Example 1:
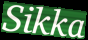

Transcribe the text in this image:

Sikka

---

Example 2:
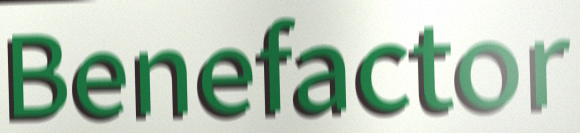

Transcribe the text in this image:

Benefactor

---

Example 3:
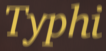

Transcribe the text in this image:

Typhi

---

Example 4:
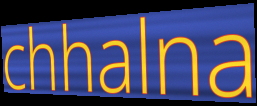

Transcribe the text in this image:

chhalna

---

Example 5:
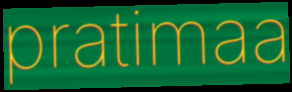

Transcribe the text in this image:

pratimaa